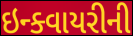
ઇન્ક્વાયરીની